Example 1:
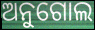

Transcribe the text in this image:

ଅନୁଗୋଲ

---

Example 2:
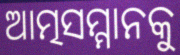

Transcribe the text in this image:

ଆତ୍ମସମ୍ମାନକୁ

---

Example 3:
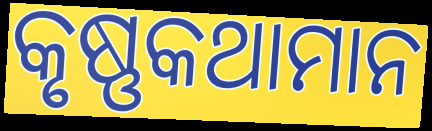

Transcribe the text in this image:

କୃଷ୍ଣକଥାମାନ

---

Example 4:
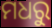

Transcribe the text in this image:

ମଧରୁ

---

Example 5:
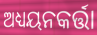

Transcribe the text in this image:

ଅଧ୍ୟୟନକର୍ତ୍ତା